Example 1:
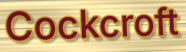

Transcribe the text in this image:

Cockcroft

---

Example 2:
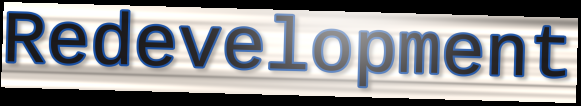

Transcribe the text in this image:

Redevelopment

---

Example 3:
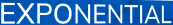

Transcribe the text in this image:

EXPONENTIAL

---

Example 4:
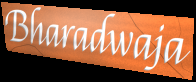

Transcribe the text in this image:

Bharadwaja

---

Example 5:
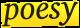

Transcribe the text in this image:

poesy